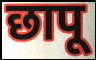
छापू